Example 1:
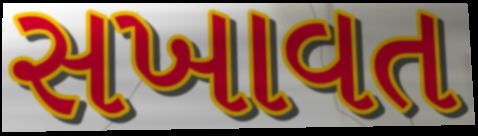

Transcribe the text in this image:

સખાવત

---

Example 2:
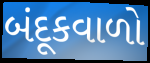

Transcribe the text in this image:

બંદૂકવાળો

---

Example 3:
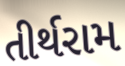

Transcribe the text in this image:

તીર્થરામ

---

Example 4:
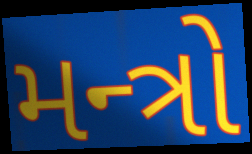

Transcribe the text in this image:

મન્ત્રો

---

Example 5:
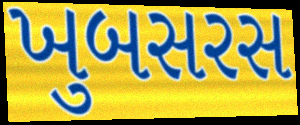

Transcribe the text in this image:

ખુબસરસ